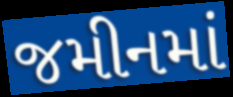
જમીનમાં